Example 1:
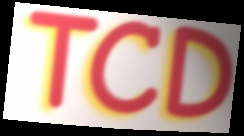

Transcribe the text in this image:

TCD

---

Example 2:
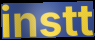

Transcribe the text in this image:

instt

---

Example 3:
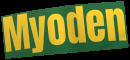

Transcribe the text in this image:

Myoden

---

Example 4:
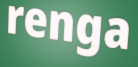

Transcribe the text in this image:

renga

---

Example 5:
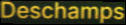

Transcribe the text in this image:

Deschamps